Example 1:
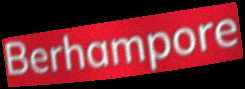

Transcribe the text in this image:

Berhampore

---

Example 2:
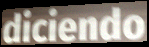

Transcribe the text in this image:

diciendo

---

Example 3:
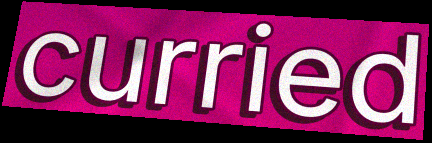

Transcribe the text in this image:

curried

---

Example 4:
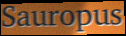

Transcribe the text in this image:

Sauropus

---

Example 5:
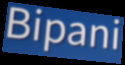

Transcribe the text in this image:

Bipani